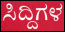
ಸಿದ್ದಿಗಳ